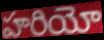
హరియో